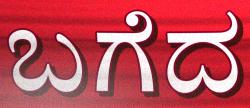
ಬಗೆದ